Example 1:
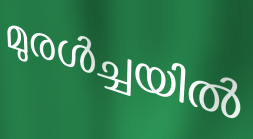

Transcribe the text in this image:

മുരൾച്ചയിൽ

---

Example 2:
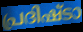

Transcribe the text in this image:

പ്രദിഷ്ടാ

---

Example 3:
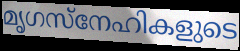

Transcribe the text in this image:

മൃഗസ്നേഹികളുടെ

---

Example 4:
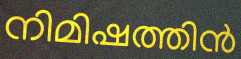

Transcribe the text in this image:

നിമിഷത്തിൻ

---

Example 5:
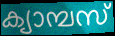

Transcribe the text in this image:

ക്യാമ്പസ്